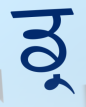
ਡ੍ਰ